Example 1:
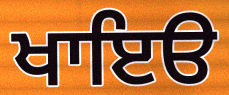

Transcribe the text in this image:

ਖਾਇੳ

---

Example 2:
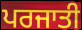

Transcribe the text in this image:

ਪਰਜਾਤੀ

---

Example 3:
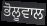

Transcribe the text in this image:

ਭੋਲੂਵਾਲ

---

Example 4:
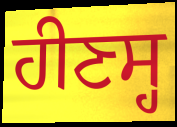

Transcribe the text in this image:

ਹੀਣਸ੍ਹ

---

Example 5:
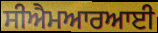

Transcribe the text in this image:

ਸੀਐਮਆਰਆਈ